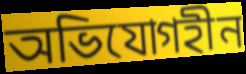
অভিযোগহীন